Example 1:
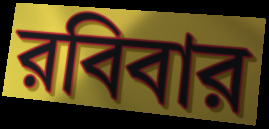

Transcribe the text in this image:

রবিবার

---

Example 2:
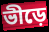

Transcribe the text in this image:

ভীড়ে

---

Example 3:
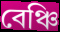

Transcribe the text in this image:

বেঞ্চি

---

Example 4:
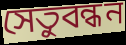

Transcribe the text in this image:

সেতুবন্ধন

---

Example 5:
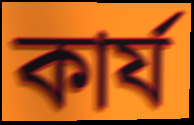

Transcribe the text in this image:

কার্য